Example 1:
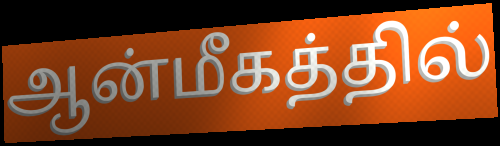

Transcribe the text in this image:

ஆன்மீகத்தில்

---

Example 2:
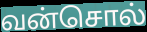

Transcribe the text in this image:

வன்சொல்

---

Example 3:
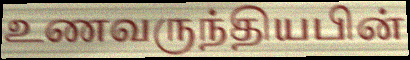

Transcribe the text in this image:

உணவருந்தியபின்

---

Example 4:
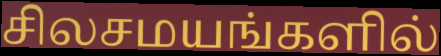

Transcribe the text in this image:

சிலசமயங்களில்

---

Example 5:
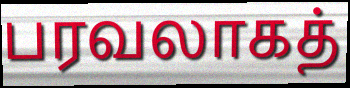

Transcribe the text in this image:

பரவலாகத்